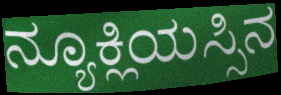
ನ್ಯೂಕ್ಲಿಯಸ್ಸಿನ